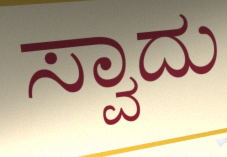
ಸ್ವಾದು